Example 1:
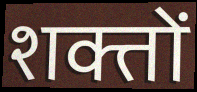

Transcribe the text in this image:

शक्तों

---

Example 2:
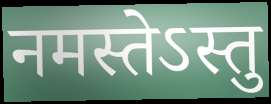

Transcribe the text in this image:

नमस्तेऽस्तु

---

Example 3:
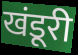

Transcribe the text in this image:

खंडूरी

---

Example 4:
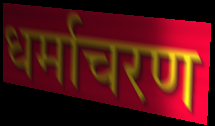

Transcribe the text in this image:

धर्माचरण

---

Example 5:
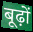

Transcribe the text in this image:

बूढ़ों